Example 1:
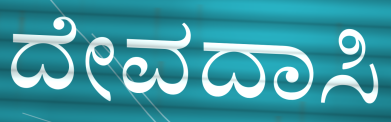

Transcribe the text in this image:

ದೇವದಾಸಿ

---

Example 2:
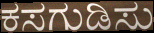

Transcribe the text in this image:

ಕಸಗುಡಿಸು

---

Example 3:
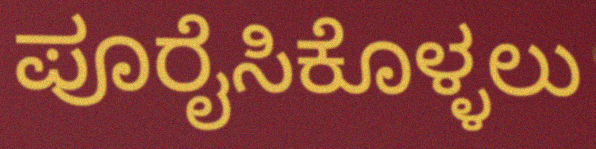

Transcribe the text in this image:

ಪೂರೈಸಿಕೊಳ್ಳಲು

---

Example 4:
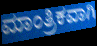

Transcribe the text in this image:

ಮಾಂತ್ರಿಕವಾಗಿ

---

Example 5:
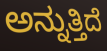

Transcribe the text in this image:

ಅನ್ನುತ್ತಿದೆ